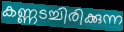
കണ്ണടച്ചിരിക്കുന്ന